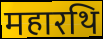
महारथि